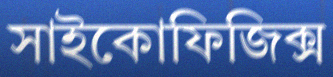
সাইকোফিজিক্স